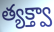
త్యక్త్వా